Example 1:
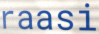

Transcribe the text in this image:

raasi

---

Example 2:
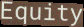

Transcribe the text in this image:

Equity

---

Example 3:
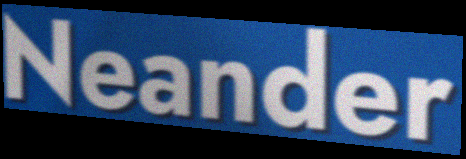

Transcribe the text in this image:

Neander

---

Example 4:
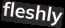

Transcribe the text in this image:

fleshly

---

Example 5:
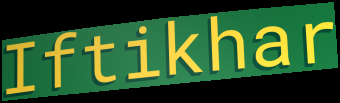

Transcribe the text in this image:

Iftikhar